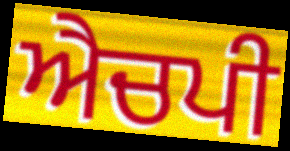
ਐਚਪੀ